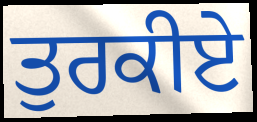
ਤੁਰਕੀਏ